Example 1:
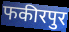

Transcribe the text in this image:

फकीरपुर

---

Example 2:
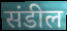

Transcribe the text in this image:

संडील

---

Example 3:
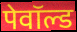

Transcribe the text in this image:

पेवॉल्ड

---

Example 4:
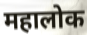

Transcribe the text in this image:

महालोक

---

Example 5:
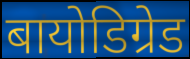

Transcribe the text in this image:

बायोडिग्रेड